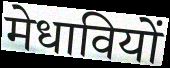
मेधावियों